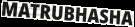
MATRUBHASHA